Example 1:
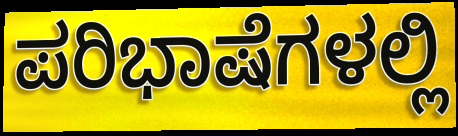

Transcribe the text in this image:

ಪರಿಭಾಷೆಗಳಲ್ಲಿ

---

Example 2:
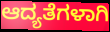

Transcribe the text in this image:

ಆದ್ಯತೆಗಳಾಗಿ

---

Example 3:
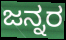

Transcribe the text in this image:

ಜನ್ನರ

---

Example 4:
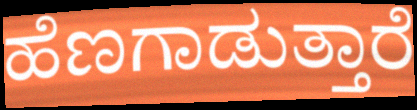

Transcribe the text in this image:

ಹೆಣಗಾಡುತ್ತಾರೆ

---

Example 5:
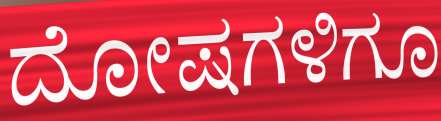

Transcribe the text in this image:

ದೋಷಗಳಿಗೂ